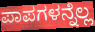
ಪಾಪಗಳನ್ನೆಲ್ಲ